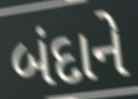
બંદાને